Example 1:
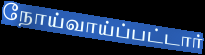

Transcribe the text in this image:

நோய்வாய்ப்பட்டார்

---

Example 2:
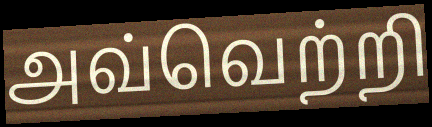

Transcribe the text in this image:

அவ்வெற்றி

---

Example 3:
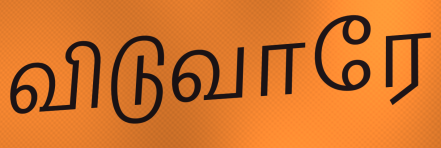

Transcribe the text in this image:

விடுவாரே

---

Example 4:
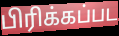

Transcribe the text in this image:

பிரிக்கப்பட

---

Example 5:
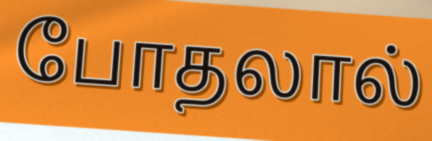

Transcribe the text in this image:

போதலால்